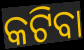
କଟିବା